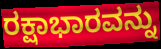
ರಕ್ಷಾಭಾರವನ್ನು